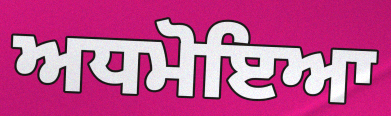
ਅਧਮੋਇਆ